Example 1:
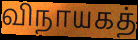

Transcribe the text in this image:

விநாயகத்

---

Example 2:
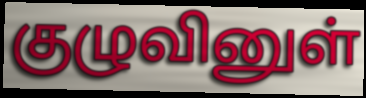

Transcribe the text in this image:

குழுவினுள்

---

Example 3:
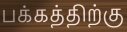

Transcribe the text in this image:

பக்கத்திற்கு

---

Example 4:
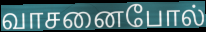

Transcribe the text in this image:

வாசனைபோல்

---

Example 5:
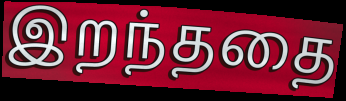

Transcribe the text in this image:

இறந்ததை